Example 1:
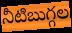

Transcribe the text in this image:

నీటిబుగ్గల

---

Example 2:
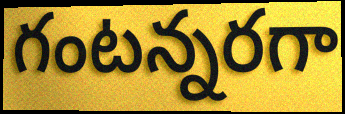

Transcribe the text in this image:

గంటన్నరగా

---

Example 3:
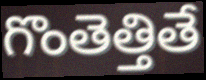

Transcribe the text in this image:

గొంతెత్తితే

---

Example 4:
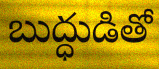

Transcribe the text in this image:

బుద్ధుడితో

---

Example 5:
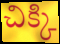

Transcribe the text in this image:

చిక్కి